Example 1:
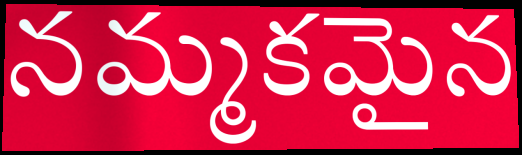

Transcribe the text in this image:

నమ్మకమైన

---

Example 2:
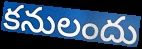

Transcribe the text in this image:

కనులందు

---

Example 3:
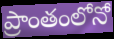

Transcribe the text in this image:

ప్రాంతంలోనో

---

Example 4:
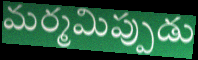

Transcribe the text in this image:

మర్మమిప్పుడు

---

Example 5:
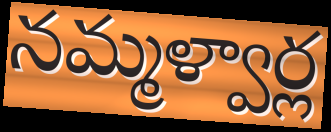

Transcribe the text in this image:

నమ్మళ్వార్ల